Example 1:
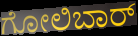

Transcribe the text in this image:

ಗೋಲಿಬಾರ್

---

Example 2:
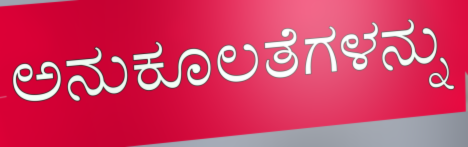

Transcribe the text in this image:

ಅನುಕೂಲತೆಗಳನ್ನು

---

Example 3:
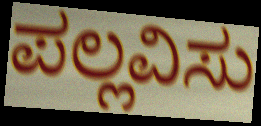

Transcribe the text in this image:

ಪಲ್ಲವಿಸು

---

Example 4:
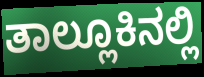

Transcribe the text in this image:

ತಾಲ್ಲೂಕಿನಲ್ಲಿ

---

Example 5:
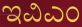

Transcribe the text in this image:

ಇವಿಎಂ